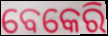
ବେକେରି